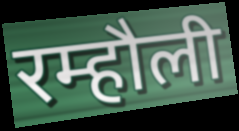
रम्हौली